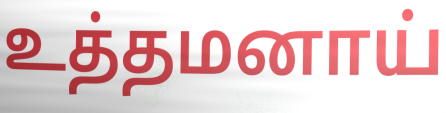
உத்தமனாய்